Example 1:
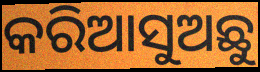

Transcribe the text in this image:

କରିଆସୁଅଛୁ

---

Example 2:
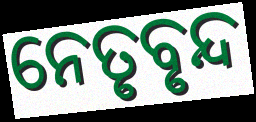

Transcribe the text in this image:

ନେତୃବୃନ୍ଦ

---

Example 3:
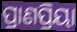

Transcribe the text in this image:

ପ୍ରାଣପ୍ରିୟା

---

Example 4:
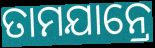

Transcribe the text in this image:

ତାମଯାନ୍ରେ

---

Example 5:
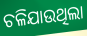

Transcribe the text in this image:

ଚଳିଯାଉଥିଲା